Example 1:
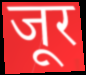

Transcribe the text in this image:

जूर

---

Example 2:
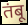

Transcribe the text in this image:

तंबू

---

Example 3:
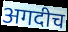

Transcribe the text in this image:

अगदीच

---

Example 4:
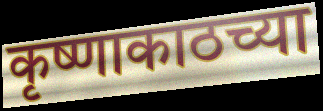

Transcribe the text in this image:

कृष्णाकाठच्या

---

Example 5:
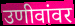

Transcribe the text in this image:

उणीवांवर